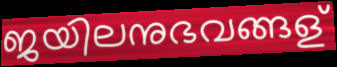
ജയിലനുഭവങ്ങള്